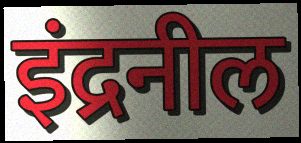
इंद्रनील